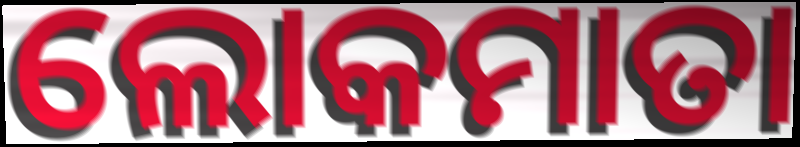
ଲୋକମାତା